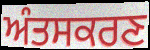
ਅੰਤਸਕਰਣ